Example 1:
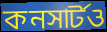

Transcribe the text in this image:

কনসার্টও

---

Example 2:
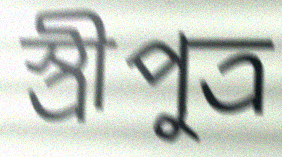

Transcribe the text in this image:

স্ত্রীপুত্র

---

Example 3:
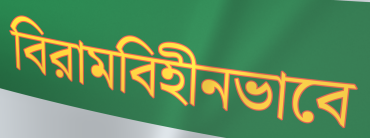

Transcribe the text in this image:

বিরামবিহীনভাবে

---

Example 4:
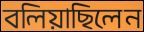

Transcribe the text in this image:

বলিয়াছিলেন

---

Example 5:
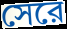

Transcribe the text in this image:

সেরে